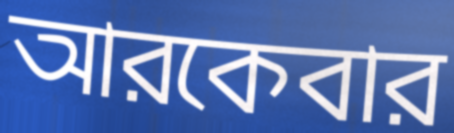
আরকেবার